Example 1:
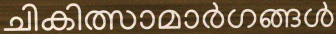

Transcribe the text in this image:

ചികിത്സാമാർഗങ്ങൾ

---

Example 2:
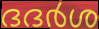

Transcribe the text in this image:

ദദർശ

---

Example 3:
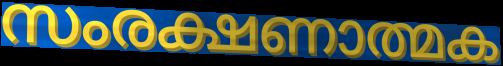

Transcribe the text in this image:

സംരക്ഷണാത്മക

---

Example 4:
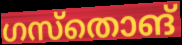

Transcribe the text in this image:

ഗസ്തൊങ്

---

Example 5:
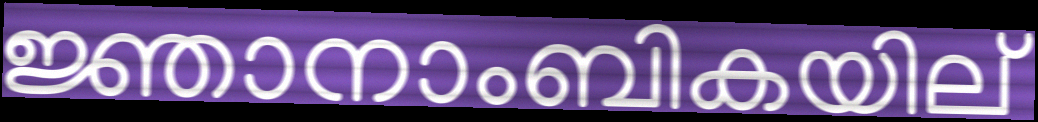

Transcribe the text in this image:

ജ്ഞാനാംബികയില്